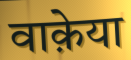
वाक़ेया